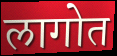
लागोत